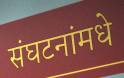
संघटनांमधे